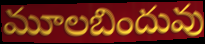
మూలబిందువు